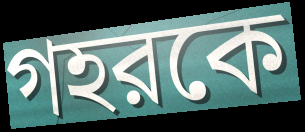
গহরকে